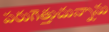
పరుగెత్తుచున్నాను